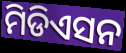
ମିଡିଏସନ